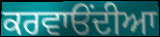
ਕਰਵਾੳਂਦੀਆ